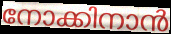
നോക്കിനാൻ